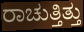
ರಾಚುತ್ತಿತ್ತು